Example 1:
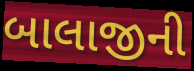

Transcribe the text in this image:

બાલાજીની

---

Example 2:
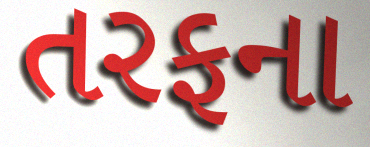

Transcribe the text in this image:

તરફના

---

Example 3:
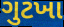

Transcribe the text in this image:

ગુટખા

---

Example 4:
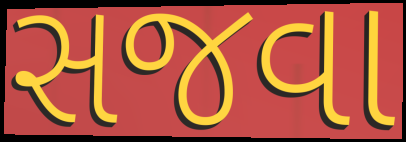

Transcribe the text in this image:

સજવા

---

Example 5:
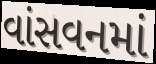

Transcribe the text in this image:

વાંસવનમાં